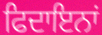
ਫਿਦਾਇਨਾਂ